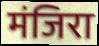
मंजिरा